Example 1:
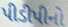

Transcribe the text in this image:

પીડીપીનો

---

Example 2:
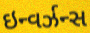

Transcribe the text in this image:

ઇન્વર્ઝન્સ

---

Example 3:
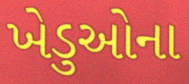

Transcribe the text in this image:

ખેડુઓના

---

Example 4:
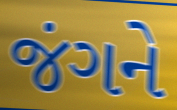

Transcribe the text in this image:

જંગને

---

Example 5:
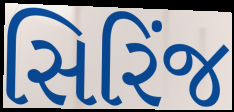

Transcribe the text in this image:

સિરિંજ